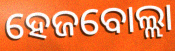
ହେଜବୋଲ୍ଲା